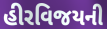
હીરવિજયની